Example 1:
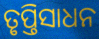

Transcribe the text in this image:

ତୃପ୍ତିସାଧନ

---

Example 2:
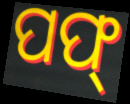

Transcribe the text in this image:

ପଫ୍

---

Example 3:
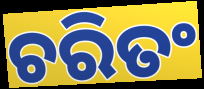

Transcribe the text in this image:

ଚରିତଂ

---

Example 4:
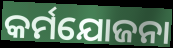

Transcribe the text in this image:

କର୍ମଯୋଜନା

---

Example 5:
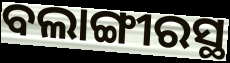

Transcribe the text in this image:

ବଲାଙ୍ଗୀରସ୍ଥ